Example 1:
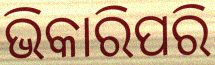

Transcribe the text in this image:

ଭିକାରିପରି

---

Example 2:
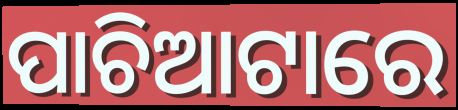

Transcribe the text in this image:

ପାଚିଆଟାରେ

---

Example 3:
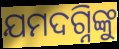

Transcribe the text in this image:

ଯମଦଗ୍ନିଙ୍କୁ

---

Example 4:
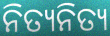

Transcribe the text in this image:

ନିତ୍ୟନିତ୍ୟ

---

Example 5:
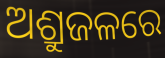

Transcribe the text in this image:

ଅଶ୍ରୁଜଳରେ